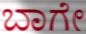
ಬಾಗೇ